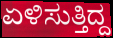
ಏಳಿಸುತ್ತಿದ್ದ